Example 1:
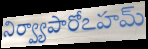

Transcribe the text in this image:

నిర్వ్యాపారోఽహమ్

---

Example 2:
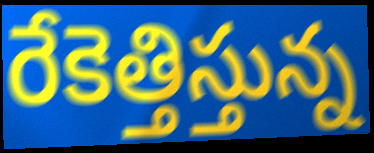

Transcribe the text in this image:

రేకెత్తిస్తున్న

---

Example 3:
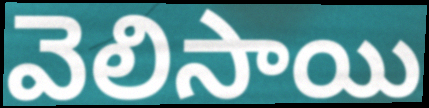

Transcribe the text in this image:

వెలిసాయి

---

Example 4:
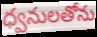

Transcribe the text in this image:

ధ్వనులతోను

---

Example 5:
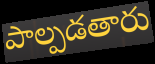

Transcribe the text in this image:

పాల్పడతారు